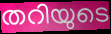
തറിയുടെ